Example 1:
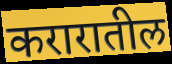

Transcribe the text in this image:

करारातील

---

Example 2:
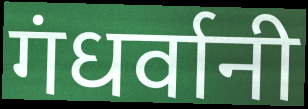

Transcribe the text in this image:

गंधर्वानी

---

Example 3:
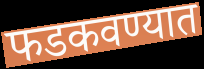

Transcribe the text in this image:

फडकवण्यात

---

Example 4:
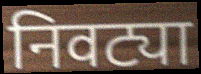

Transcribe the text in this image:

निवट्या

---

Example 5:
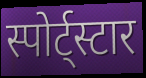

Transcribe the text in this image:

स्पोर्ट्स्टार